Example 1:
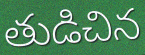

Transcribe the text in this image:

తుడిచిన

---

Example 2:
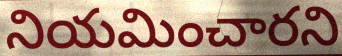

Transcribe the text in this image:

నియమించారని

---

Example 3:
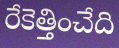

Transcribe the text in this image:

రేకెత్తించేది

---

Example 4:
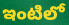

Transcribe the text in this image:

ఇంటిలో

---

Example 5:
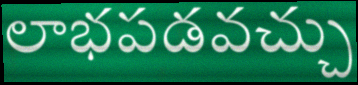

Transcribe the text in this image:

లాభపడవచ్చు